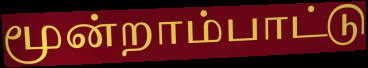
மூன்றாம்பாட்டு